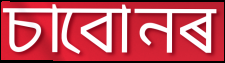
চাবোনৰ